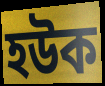
হউক